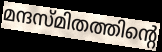
മന്ദസ്മിതത്തിന്റെ